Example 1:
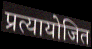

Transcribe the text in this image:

प्रत्यायोजित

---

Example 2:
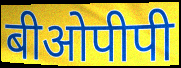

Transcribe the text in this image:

बीओपीपी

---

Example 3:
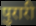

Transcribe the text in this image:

पुरारी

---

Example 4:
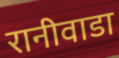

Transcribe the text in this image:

रानीवाडा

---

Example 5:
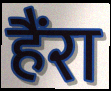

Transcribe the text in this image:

हैंरा